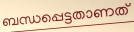
ബന്ധപ്പെട്ടതാണത്